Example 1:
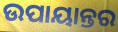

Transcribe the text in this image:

ଉପାୟାନ୍ତର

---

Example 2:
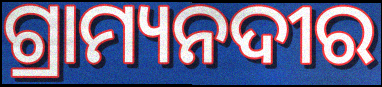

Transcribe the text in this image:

ଗ୍ରାମ୍ୟନଦୀର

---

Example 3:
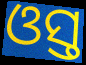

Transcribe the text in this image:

ଓସ୍ତ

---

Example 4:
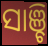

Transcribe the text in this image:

ସାଞ୍ଚି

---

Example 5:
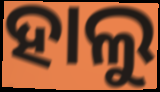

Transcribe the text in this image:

ହାଲୁ